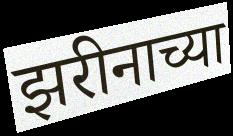
झरीनाच्या